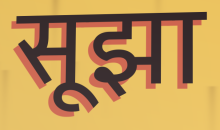
सूझा